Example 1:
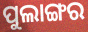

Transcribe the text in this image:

ପୁଲାଙ୍ଗର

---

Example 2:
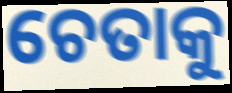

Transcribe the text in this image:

ଚେତାକୁ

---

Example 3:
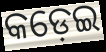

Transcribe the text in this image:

କଡ଼େଇ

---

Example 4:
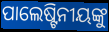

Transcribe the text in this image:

ପାଲେଷ୍ଟିନୀୟଙ୍କୁ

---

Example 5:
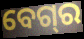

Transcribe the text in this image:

ବେଗ୍‌ର